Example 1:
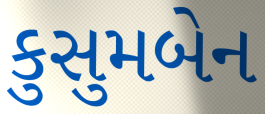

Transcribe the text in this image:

કુસુમબેન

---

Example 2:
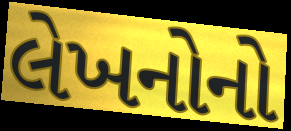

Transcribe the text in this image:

લેખનોનો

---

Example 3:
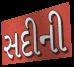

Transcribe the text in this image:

સદીની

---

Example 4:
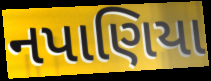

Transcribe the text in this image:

નપાણિયા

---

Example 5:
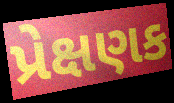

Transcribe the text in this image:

પ્રેક્ષણક